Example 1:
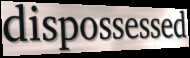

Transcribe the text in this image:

dispossessed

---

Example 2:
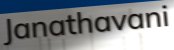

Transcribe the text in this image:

Janathavani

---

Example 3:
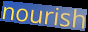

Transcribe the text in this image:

nourish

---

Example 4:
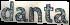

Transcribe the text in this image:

danta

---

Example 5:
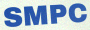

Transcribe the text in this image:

SMPC